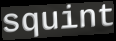
squint